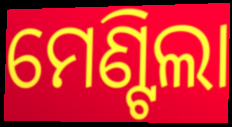
ମେଣ୍ଟିଲା